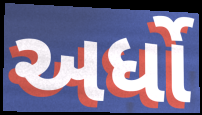
અર્ધો